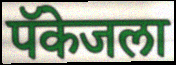
पॅकेजला